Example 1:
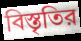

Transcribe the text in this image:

বিস্তৃতির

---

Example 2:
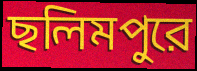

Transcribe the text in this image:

ছলিমপুরে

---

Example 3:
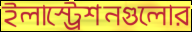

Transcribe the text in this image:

ইলাস্ট্রেশনগুলোর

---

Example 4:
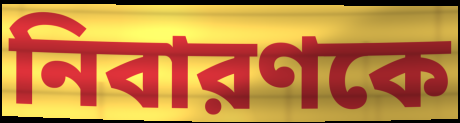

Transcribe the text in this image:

নিবারণকে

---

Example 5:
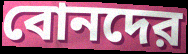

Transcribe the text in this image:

বোনদের